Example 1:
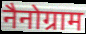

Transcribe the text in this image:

नैनोग्राम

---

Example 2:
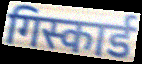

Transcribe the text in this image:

गिस्कार्ड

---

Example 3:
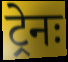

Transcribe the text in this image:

ट्रेनः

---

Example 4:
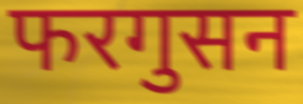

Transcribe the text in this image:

फरगुसन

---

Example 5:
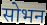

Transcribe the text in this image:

सोभन